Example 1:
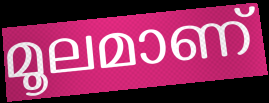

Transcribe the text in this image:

മൂലമാണ്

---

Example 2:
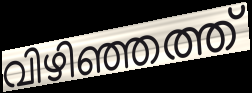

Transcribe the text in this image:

വിഴിഞ്ഞത്ത്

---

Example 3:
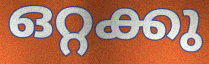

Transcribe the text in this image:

ഒറ്റക്കു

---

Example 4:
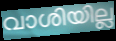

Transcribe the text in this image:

വാശിയില്ല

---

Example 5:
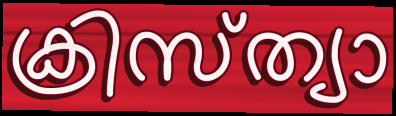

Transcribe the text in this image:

ക്രിസ്‌ത്യാ